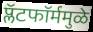
प्लॅटफॉर्ममुळे